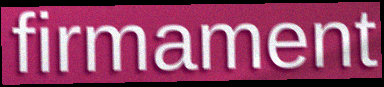
firmament